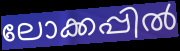
ലോക്കപ്പിൽ